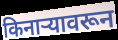
किनाऱ्यावरून